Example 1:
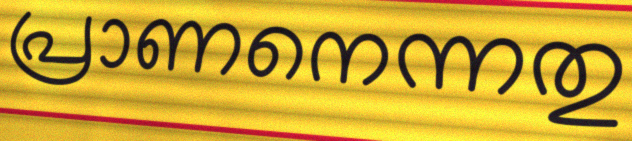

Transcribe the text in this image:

പ്രാണനെന്നതു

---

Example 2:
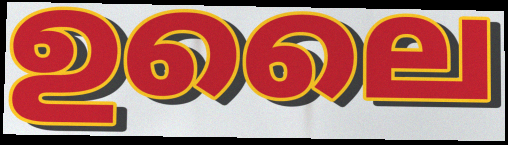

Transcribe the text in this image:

ഉലൈ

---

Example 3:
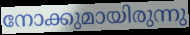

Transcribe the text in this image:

നോക്കുമായിരുന്നു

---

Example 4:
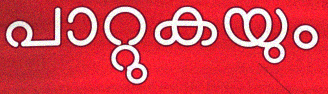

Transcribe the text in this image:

പാറ്റുകയും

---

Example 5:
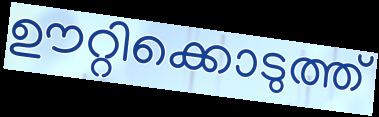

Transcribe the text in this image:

ഊറ്റിക്കൊടുത്ത്